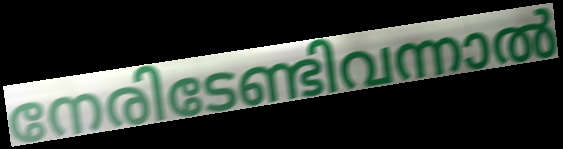
നേരിടേണ്ടിവന്നാൽ